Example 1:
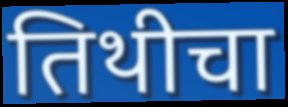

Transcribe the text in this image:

तिथीचा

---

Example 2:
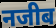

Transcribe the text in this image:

नजीब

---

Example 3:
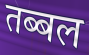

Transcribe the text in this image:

तब्बल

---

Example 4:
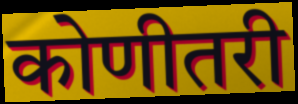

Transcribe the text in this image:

कोणीतरी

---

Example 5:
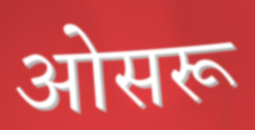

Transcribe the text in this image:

ओसरू